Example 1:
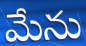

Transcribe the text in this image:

మేను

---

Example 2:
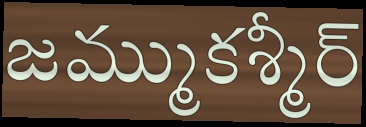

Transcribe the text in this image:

జమ్ముకశ్మీర్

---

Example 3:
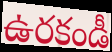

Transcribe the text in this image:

ఉరకండీ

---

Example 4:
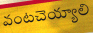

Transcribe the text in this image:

వంటచెయ్యాలి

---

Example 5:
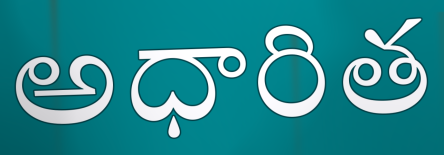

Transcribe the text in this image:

అధారిత